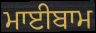
ਮਾਈਬਾਮ